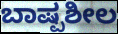
ಬಾಷ್ಪಶೀಲ